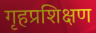
गृहप्रशिक्षण